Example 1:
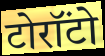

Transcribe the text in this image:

टोरॉंटो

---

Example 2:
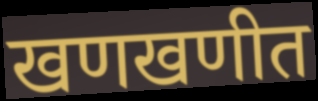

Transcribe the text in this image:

खणखणीत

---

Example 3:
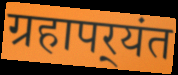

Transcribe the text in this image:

ग्रहापर्यंत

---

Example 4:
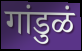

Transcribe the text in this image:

गांडुळं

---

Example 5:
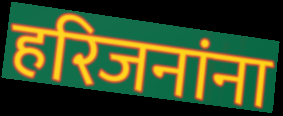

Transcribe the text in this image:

हरिजनांना